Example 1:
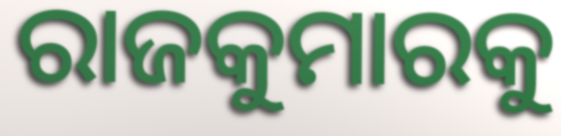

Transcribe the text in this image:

ରାଜକୁମାରକୁ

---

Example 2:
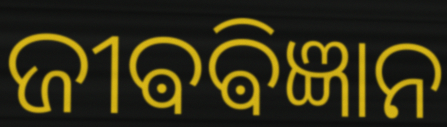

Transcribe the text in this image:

ଜୀଵଵିଜ୍ଞାନ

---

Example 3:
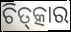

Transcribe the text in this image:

ଚିତ୍‌ତ୍କାର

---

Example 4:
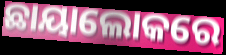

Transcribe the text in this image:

ଛାୟାଲୋକରେ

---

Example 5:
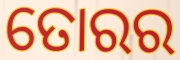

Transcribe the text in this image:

ତୋରର